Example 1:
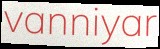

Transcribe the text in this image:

vanniyar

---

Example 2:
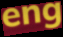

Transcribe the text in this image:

eng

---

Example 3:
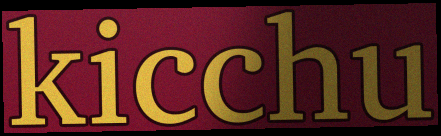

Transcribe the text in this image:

kicchu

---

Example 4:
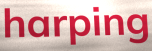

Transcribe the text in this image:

harping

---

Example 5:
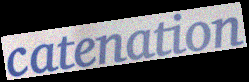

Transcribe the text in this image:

catenation